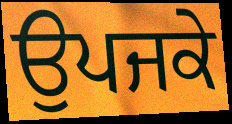
ਉਪਜਕੇ